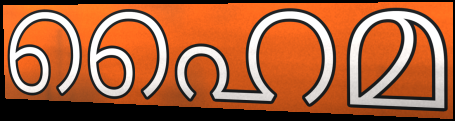
ഹൈമ